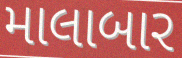
માલાબાર